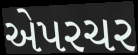
એપરચર